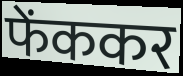
फेंककर